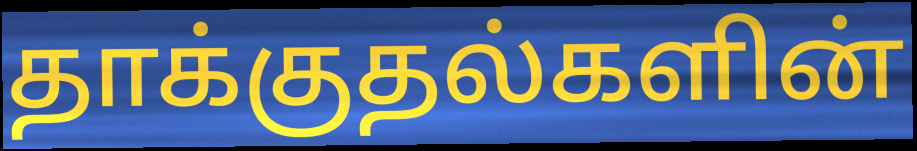
தாக்குதல்களின்